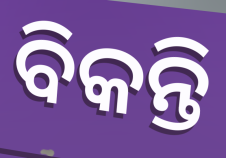
ବିକନ୍ତି